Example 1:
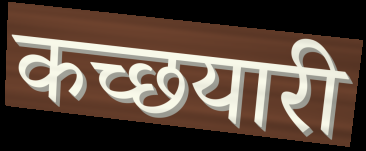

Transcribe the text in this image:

कच्छयारी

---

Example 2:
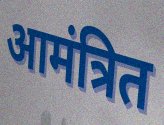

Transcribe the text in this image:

आमंत्रित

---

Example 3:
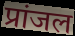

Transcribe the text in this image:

प्रांजल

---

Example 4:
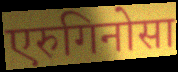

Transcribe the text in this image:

एरुगिनोसा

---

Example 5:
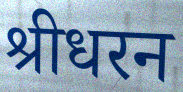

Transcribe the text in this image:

श्रीधरन